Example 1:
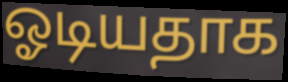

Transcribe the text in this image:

ஓடியதாக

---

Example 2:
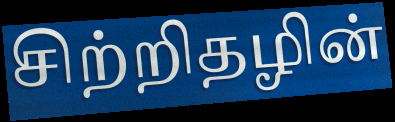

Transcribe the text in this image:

சிற்றிதழின்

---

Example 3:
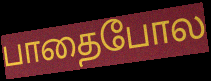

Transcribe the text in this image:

பாதைபோல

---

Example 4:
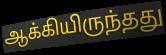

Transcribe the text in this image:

ஆக்கியிருந்தது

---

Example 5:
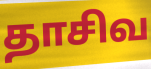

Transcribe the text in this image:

தாசிவ